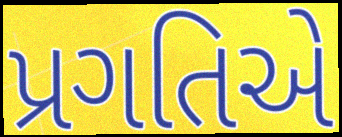
પ્રગતિએ